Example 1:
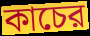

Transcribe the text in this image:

কাচের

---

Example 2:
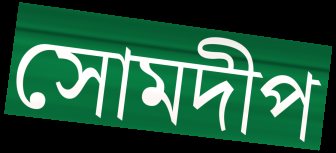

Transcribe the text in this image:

সোমদীপ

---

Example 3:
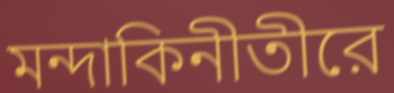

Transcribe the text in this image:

মন্দাকিনীতীরে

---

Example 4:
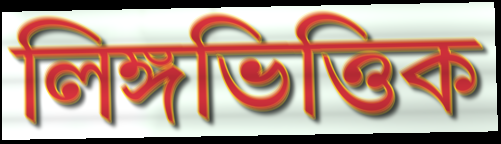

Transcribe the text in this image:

লিঙ্গভিত্তিক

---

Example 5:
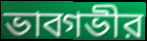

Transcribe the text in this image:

ভাবগভীর